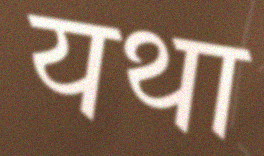
यथा